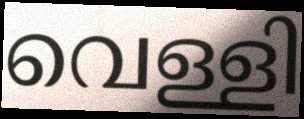
വെള്ളി